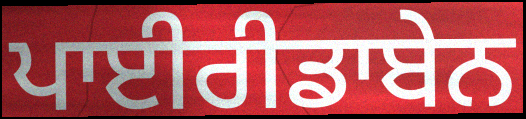
ਪਾਈਰੀਡਾਬੇਨ